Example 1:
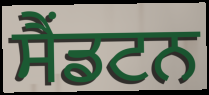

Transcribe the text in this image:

ਸੈਂਡਟਨ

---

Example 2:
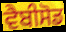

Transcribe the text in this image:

ਵੈਬੀਸੋਡ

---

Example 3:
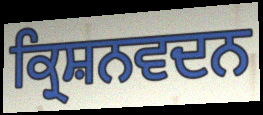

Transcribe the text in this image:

ਕ੍ਰਿਸ਼ਨਵਦਨ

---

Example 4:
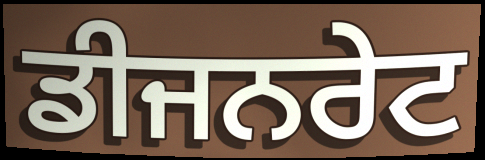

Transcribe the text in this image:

ਡੀਜਨਰੇਟ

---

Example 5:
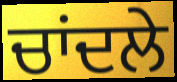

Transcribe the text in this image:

ਚਾਂਦਲੇ